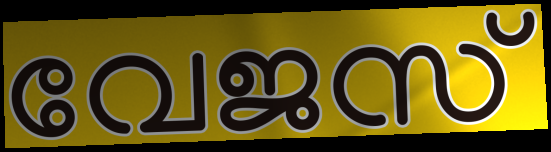
വേജസ്